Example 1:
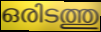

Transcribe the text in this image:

ഒരിടത്തു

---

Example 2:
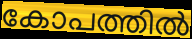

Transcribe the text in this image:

കോപത്തിൽ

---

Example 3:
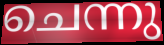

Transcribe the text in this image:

ചെന്നു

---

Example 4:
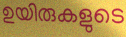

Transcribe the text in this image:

ഉയിരുകളുടെ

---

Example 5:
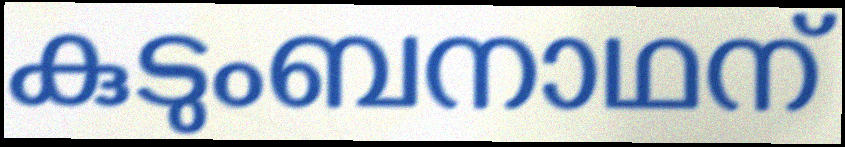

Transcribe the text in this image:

കുടുംബനാഥന്